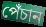
পেঁচান